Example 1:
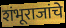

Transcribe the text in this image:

शंभूराजांचे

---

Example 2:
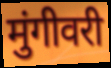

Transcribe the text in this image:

मुंगीवरी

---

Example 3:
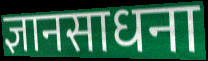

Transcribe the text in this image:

ज्ञानसाधना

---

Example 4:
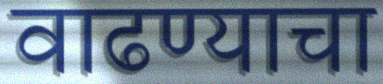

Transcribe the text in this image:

वाढण्याचा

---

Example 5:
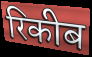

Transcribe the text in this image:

रिकीब